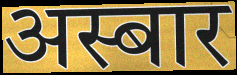
अस्बार